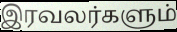
இரவலர்களும்